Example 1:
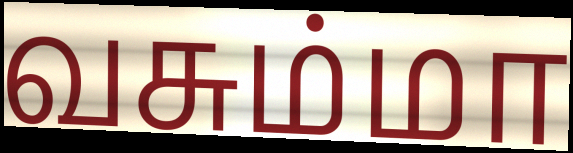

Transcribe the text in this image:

வசும்மா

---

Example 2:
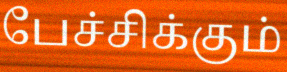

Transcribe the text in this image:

பேச்சிக்கும்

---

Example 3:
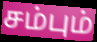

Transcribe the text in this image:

சம்பும்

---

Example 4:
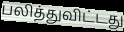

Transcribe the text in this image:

பலித்துவிட்டது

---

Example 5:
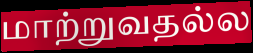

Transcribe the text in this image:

மாற்றுவதல்ல